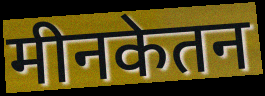
मीनकेतन